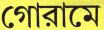
গোরামে